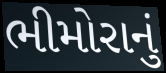
ભીમોરાનું